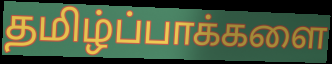
தமிழ்ப்பாக்களை